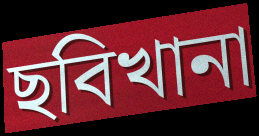
ছবিখানা